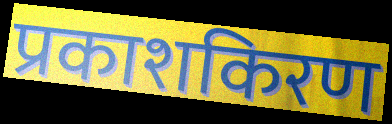
प्रकाशकिरण